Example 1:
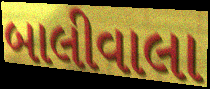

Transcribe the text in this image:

બાલીવાલા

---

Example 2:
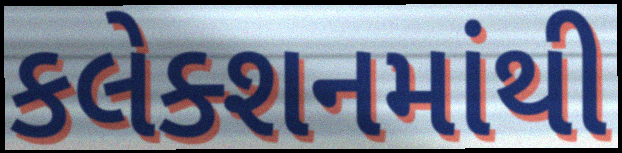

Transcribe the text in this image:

કલેક્શનમાંથી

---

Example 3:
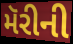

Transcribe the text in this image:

મૅરીની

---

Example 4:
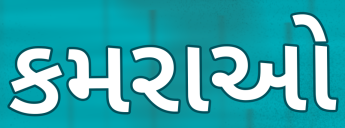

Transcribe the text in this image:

કમરાઓ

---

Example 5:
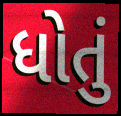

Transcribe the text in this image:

ધોતું